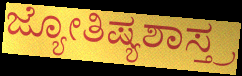
ಜ್ಯೋತಿಷ್ಯಶಾಸ್ತ್ರ